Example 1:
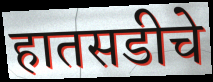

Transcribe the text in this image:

हातसडीचे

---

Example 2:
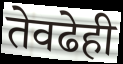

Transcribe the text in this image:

तेवढेही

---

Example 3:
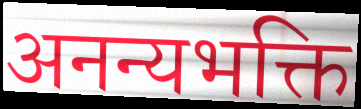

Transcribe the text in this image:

अनन्यभक्ति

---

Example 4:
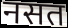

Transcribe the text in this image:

नसत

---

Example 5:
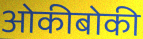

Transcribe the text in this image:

ओकीबोकी